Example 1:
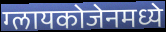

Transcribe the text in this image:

ग्लायकोजेनमध्ये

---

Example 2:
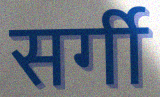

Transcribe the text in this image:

सर्गी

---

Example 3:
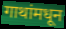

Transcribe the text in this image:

गाथांमधून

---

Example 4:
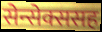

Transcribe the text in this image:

सेन्सेक्ससह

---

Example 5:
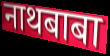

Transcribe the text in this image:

नाथबाबा